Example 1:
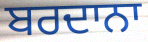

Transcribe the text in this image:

ਬਰਦਾਨਾ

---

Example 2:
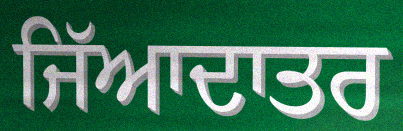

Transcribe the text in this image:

ਜਿੱਆਦਾਤਰ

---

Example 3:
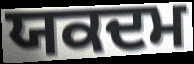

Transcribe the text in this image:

ਯਕਦਮ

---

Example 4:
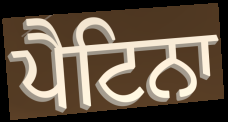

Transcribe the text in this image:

ਪੈਟਿਨਾ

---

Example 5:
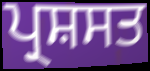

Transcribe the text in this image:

ਪ੍ਰਸ਼ਸਤ